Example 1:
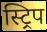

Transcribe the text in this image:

स्ट्रिप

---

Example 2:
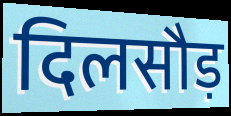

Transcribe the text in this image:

दिलसौड़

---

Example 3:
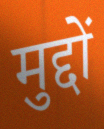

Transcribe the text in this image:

मुद्दों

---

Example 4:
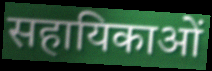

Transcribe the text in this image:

सहायिकाओं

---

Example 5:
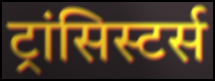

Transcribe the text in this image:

ट्रांसिस्टर्स